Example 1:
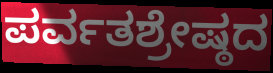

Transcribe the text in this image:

ಪರ್ವತಶ್ರೇಷ್ಠದ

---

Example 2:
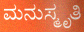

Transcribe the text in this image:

ಮನುಸ್ಮೃತಿ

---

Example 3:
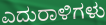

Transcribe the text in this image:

ಎದುರಾಳಿಗಳು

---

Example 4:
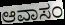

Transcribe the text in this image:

ಆವಾಸಂ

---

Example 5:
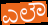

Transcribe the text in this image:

ಎಲೌ